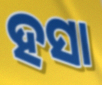
ହସା